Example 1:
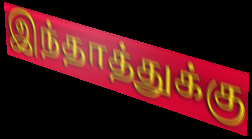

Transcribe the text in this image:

இந்தாத்துக்கு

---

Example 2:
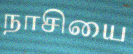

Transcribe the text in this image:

நாசியை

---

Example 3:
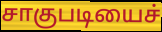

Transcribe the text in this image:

சாகுபடியைச்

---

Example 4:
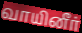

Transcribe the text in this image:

வாயினீர்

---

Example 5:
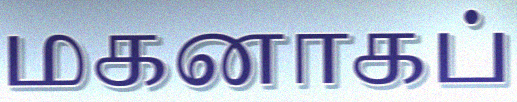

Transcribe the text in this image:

மகனாகப்